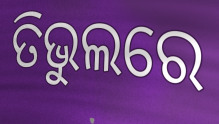
ତିଭୁଲରେ